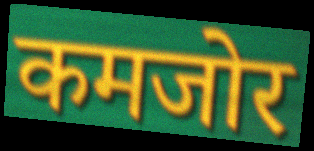
कमजोर